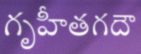
గృహీతగదౌ